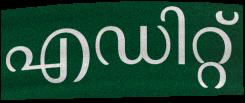
എഡിറ്റ്